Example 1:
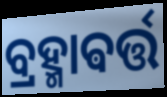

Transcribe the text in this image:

ବ୍ରହ୍ମାଵର୍ତ୍ତ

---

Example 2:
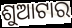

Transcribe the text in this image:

ଶୁଆଟାର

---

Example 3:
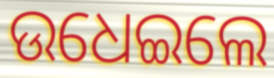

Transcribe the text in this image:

ଉଧେଇଲେ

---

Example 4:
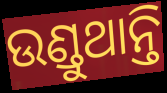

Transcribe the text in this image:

ଉଣ୍ଡୁଥାନ୍ତି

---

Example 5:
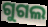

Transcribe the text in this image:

ଗୁଗଲ